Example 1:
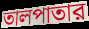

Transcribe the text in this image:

তালপাতার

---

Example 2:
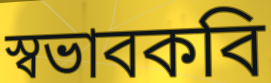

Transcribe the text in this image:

স্বভাবকবি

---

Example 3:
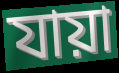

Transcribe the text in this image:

যায়া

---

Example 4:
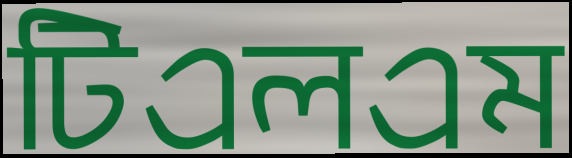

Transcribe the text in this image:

টিএলএম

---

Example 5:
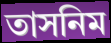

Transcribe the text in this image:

তাসনিম